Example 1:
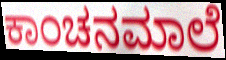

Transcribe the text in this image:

ಕಾಂಚನಮಾಲೆ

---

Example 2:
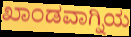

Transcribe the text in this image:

ಖಾಂಡವಾಗ್ನಿಯ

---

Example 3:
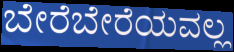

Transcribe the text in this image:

ಬೇರೆಬೇರೆಯವಲ್ಲ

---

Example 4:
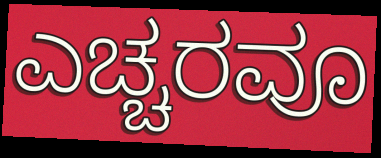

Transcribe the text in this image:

ಎಚ್ಚರವೂ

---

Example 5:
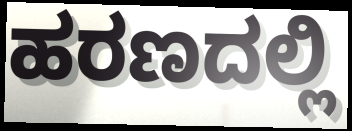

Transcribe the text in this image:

ಹರಣದಲ್ಲಿ